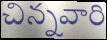
చిన్నవారి